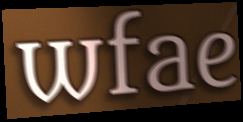
wfae